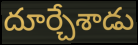
దూర్చేశాడు